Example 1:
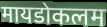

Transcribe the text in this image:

मायडोकलम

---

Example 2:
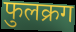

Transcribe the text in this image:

फुलक्रग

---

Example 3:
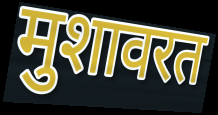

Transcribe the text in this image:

मुशावरत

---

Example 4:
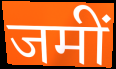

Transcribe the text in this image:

जमीं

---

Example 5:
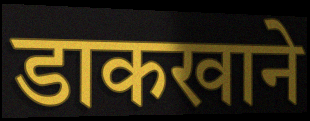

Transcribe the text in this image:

डाकखाने